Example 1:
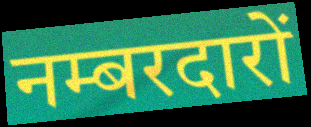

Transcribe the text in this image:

नम्बरदारों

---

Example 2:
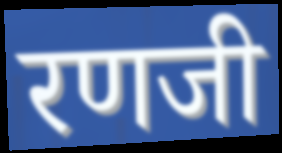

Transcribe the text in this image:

रणजी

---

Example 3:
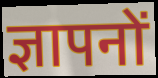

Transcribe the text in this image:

ज्ञापनों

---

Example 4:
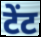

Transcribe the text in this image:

टेंट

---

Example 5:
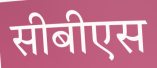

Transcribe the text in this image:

सीबीएस